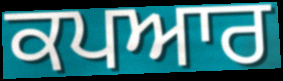
ਕਪਆਰ